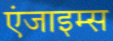
एंजाइम्‍स